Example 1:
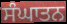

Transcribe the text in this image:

ਸੰਘਾਤਨ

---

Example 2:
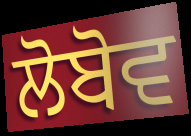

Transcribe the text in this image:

ਲੋਬੋਵ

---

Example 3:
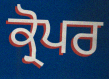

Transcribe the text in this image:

ਕ੍ਰੋਪਰ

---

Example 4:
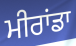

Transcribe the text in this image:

ਮੀਰਾਂਡਾ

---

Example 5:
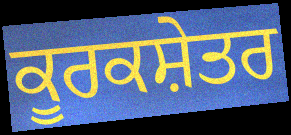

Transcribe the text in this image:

ਕੂਰਕਸ਼ੇਤਰ